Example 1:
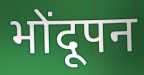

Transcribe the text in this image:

भोंदूपन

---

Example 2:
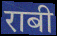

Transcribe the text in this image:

राबी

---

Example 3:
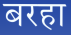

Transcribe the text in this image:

बरहा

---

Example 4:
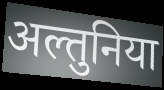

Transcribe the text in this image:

अल्तुनिया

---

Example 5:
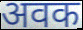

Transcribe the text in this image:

अवक